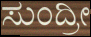
ಸುಂದ್ರೀ